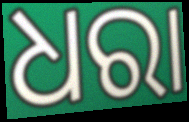
ଧରା